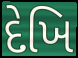
દેખિ